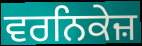
ਵਰਨਿਕੇਜ਼